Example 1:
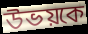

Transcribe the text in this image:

উভয়কে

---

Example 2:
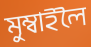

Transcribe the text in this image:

মুম্বাইলৈ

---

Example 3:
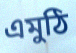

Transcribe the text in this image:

এমুঠি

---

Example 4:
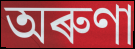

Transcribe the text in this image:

অৰুণা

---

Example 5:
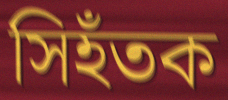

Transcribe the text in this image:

সিহঁতক